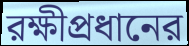
রক্ষীপ্রধানের